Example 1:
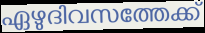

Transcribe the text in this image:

ഏഴുദിവസത്തേക്ക്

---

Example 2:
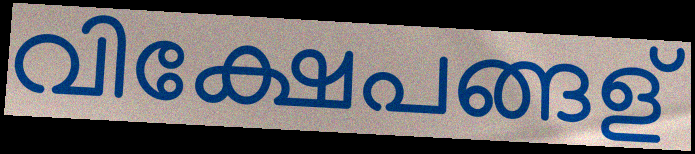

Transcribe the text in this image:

വിക്ഷേപങ്ങള്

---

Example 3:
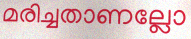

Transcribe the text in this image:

മരിച്ചതാണല്ലോ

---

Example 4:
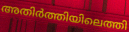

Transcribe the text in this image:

അതിർത്തിയിലെത്തി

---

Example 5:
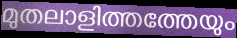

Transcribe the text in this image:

മുതലാളിത്തത്തേയും